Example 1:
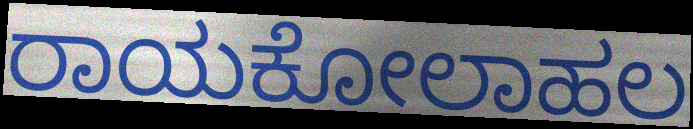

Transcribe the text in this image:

ರಾಯಕೋಲಾಹಲ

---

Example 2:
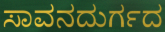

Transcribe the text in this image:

ಸಾವನದುರ್ಗದ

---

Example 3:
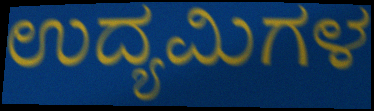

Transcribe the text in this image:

ಉದ್ಯಮಿಗಳ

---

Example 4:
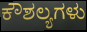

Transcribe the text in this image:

ಕೌಶಲ್ಯಗಳು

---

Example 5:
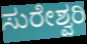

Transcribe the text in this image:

ಸುರೇಶ್ವರಿ